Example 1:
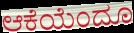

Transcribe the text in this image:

ಆಕೆಯೆಂದೂ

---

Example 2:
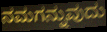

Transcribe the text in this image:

ನಮಗನ್ನುವುದು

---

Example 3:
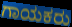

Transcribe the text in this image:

ಗಾಯಕರು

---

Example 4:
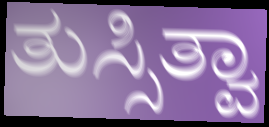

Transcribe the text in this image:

ತುಸ್ಸಿತ್ವಾ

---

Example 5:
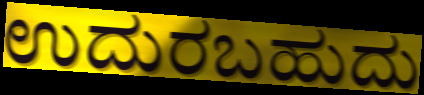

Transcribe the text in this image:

ಉದುರಬಹುದು